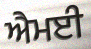
ਐਮਈ